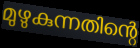
മുഴുകുന്നതിന്റെ